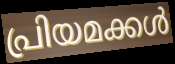
പ്രിയമക്കൾ